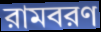
রামবরণ